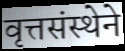
वृत्तसंस्थेने